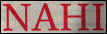
NAHI